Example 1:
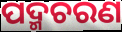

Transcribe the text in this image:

ପଦ୍ମଚରଣ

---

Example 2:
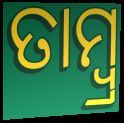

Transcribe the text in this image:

ତାମ୍ବ୍ର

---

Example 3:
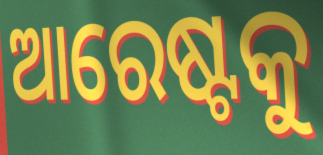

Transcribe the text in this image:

ଆରେଷ୍ଟକୁ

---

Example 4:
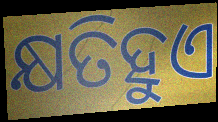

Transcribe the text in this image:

କ୍ଷତିହୁଏ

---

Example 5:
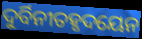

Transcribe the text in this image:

ଦୁର୍ବିନୀତହୃଦୟେନ